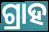
ଗ୍ରାହ